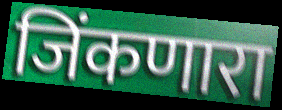
जिंकणारा